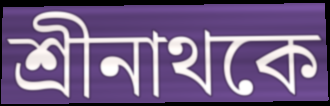
শ্রীনাথকে